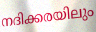
നദിക്കരയിലും